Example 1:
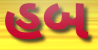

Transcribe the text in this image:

હબ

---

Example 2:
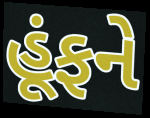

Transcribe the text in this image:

હૂંફને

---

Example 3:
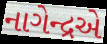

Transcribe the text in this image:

નાગેન્દ્રએ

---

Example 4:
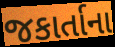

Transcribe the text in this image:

જકાર્તાના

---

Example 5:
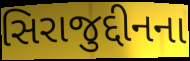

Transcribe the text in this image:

સિરાજુદ્દીનના